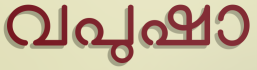
വപുഷാ